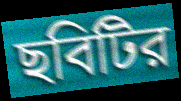
ছবিটির